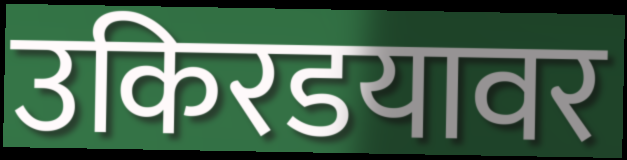
उकिरडयावर